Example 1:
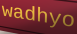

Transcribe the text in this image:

wadhyo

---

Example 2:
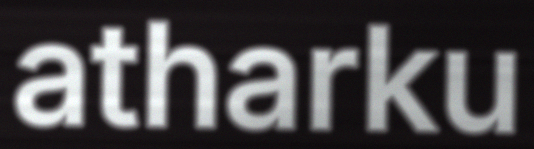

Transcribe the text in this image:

atharku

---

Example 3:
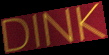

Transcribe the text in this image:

DINK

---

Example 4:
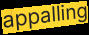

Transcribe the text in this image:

appalling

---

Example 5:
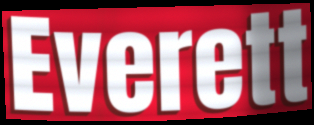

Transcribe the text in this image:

Everett